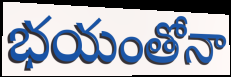
భయంతోనా